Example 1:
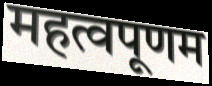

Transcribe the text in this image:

महत्वपूणम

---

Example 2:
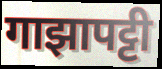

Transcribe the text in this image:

गाझापट्टी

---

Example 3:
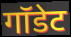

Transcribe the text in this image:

गॉडेट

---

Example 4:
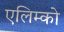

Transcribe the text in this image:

एलिम्को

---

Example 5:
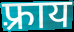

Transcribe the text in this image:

फ़्राय